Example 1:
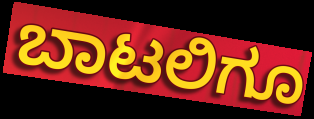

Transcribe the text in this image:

ಬಾಟಲಿಗೂ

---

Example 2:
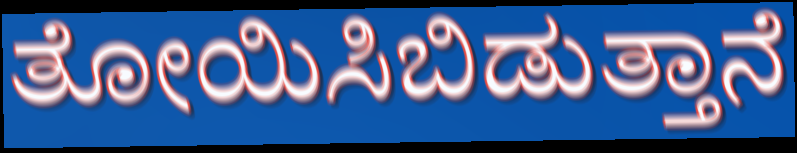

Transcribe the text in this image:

ತೋಯಿಸಿಬಿಡುತ್ತಾನೆ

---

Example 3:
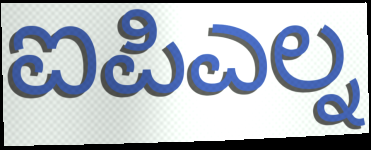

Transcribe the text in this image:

ಐಪಿಎಲ್ನ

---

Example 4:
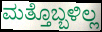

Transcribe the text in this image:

ಮತ್ತೊಬ್ಬಳಿಲ್ಲ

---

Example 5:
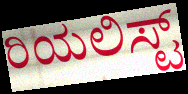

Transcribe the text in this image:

ರಿಯಲಿಸ್ಟ್